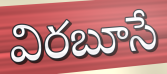
విరబూసే